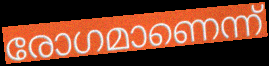
രോഗമാണെന്ന്